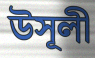
উসূলী